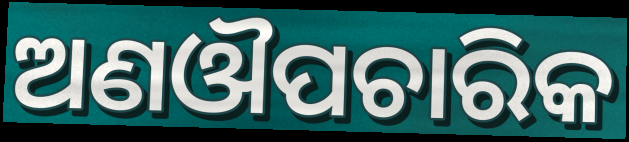
ଅଣଔପଚାରିକ